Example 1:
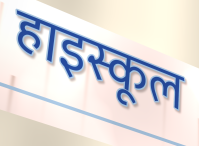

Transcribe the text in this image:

हाइस्कूल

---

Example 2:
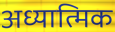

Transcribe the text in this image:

अध्यात्मिक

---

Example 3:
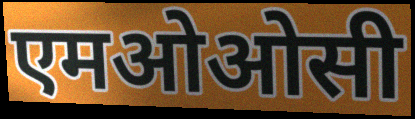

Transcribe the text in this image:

एमओओसी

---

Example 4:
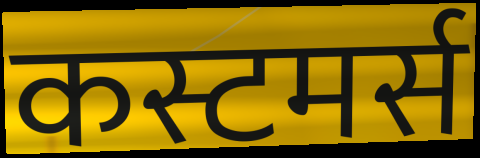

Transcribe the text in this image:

कस्‍टमर्स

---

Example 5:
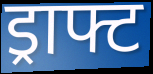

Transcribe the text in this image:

ड्राफ्ट